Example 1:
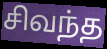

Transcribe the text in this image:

சிவந்த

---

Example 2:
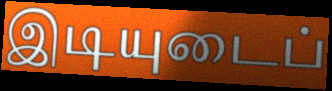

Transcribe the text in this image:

இடியுடைப்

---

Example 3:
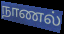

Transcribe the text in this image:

நாணல்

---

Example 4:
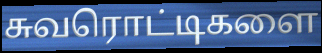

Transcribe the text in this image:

சுவரொட்டிகளை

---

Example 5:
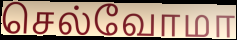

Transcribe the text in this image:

செல்வோமா